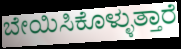
ಬೇಯಿಸಿಕೊಳ್ಳುತ್ತಾರೆ